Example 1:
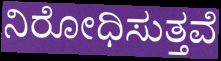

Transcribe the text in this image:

ನಿರೋಧಿಸುತ್ತವೆ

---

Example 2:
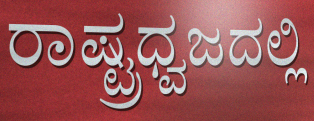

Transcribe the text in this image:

ರಾಷ್ಟ್ರಧ್ವಜದಲ್ಲಿ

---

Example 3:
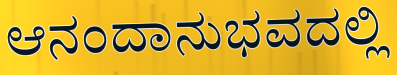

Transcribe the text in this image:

ಆನಂದಾನುಭವದಲ್ಲಿ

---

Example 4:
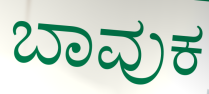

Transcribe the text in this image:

ಬಾವುಕ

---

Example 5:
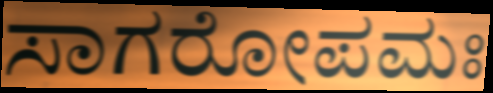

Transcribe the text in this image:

ಸಾಗರೋಪಮಃ